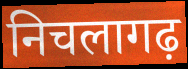
निचलागढ़